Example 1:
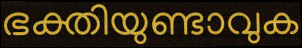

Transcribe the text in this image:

ഭക്തിയുണ്ടാവുക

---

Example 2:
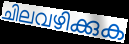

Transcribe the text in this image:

ചിലവഴിക്കുക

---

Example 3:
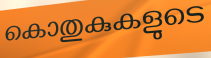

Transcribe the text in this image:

കൊതുകുകളുടെ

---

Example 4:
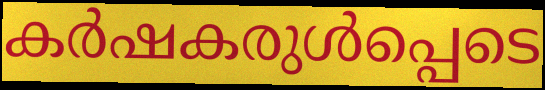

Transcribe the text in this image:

കർഷകരുൾപ്പെടെ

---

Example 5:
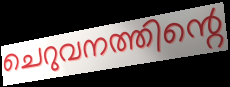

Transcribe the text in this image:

ചെറുവനത്തിന്റെ